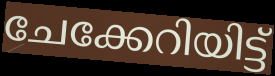
ചേക്കേറിയിട്ട്